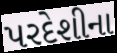
પરદેશીના